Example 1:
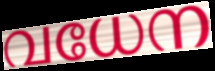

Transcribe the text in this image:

വധേന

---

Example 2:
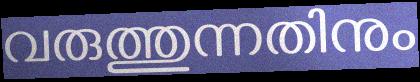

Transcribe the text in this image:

വരുത്തുന്നതിനും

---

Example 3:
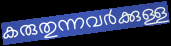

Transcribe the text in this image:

കരുതുന്നവർക്കുള്ള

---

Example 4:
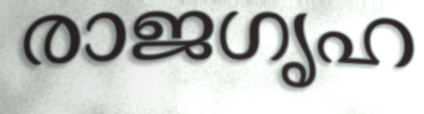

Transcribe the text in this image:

രാജഗൃഹ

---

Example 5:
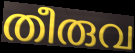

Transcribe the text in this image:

തീരുവ